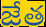
జేత